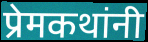
प्रेमकथांनी